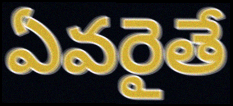
ఏవరైతే